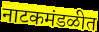
नाटकमंडळीत